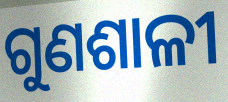
ଗୁଣଶାଳୀ